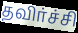
தவிர்ச்சி